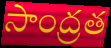
సాంద్రత